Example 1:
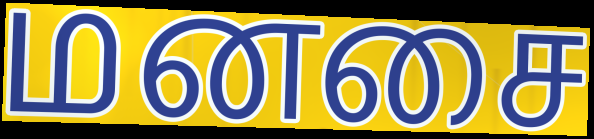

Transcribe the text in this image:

மனசை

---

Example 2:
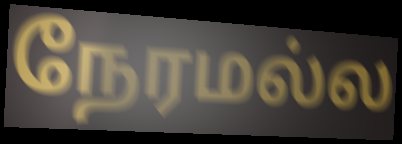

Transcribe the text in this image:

நேரமல்ல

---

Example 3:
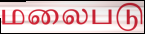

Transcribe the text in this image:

மலைபடு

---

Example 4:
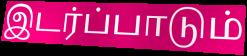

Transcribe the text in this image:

இடர்ப்பாடும்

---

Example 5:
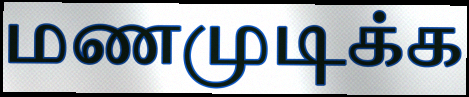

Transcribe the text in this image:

மணமுடிக்க